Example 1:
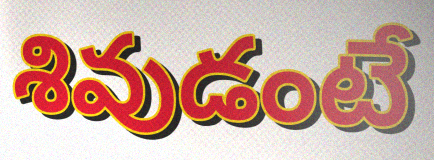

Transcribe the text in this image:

శివుడంటే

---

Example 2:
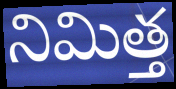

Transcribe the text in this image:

నిమిత్త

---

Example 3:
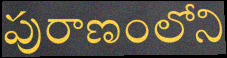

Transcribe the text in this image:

పురాణంలోని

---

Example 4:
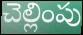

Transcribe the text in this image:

చెల్లింపు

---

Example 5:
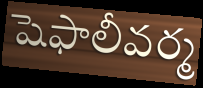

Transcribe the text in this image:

షెఫాలీవర్మ